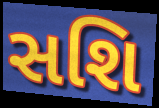
સશિ